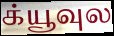
க்யூவுல